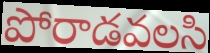
పోరాడవలసి